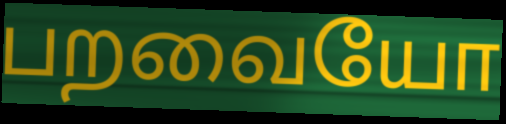
பறவையோ